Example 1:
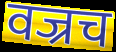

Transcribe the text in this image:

वज्रच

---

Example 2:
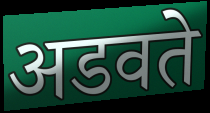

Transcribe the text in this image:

अडवते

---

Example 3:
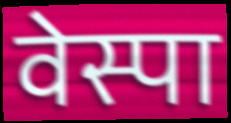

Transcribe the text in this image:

वेस्पा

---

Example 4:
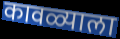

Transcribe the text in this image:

कावळ्याला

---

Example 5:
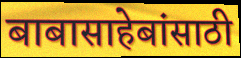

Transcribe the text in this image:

बाबासाहेबांसाठी